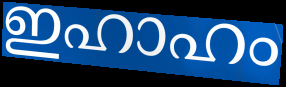
ഇഹാഹം